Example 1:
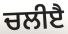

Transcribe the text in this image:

ਚਲੀੲੈ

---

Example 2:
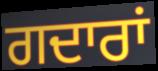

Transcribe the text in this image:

ਗਦਾਰਾਂ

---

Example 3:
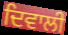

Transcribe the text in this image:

ਦਿਵਾਲੀ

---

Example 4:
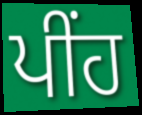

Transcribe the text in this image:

ਪੀਂਹ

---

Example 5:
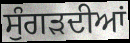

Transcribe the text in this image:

ਸੁੰਗੜਦੀਆਂ